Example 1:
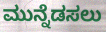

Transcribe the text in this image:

ಮುನ್ನೆಡಸಲು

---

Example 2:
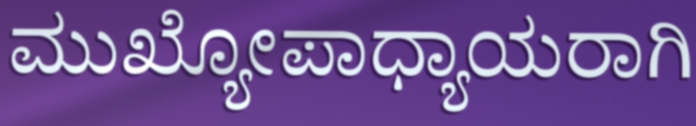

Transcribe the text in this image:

ಮುಖ್ಯೋಪಾಧ್ಯಾಯರಾಗಿ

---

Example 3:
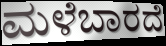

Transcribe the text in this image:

ಮಳೆಬಾರದೆ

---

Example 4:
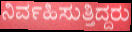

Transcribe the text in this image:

ನಿರ್ವಹಿಸುತ್ತಿದ್ದರು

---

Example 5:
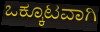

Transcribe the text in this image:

ಒಕ್ಕೂಟವಾಗಿ